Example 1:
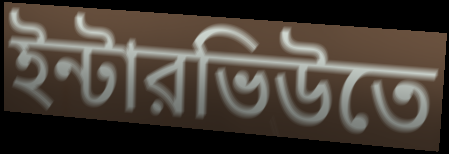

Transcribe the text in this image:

ইন্টারভিউতে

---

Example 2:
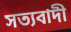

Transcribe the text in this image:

সত্যবাদী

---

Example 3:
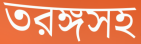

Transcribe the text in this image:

তরঙ্গসহ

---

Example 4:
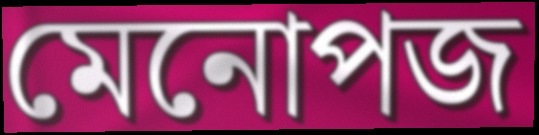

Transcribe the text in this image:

মেনোপজ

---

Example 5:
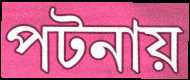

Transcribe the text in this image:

পটনায়